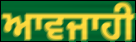
ਆਵਜਾਹੀ